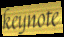
keynote